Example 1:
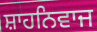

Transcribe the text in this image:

ਸ਼ਾਹਨਿਵਾਜ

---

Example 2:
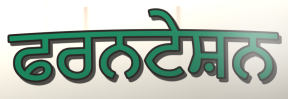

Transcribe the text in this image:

ਫਰਨਟੇਸ਼ਨ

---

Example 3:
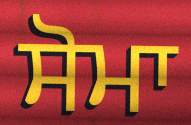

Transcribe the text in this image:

ਸੋਮਾ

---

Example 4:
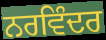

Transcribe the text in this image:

ਨਰਵਿੰਦਰ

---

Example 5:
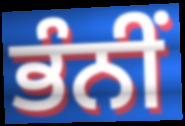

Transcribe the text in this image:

ਭੰਨੀਂ